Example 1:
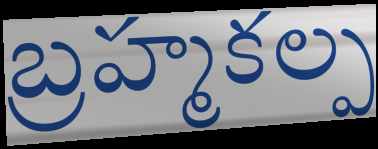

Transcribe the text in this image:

బ్రహ్మకల్ప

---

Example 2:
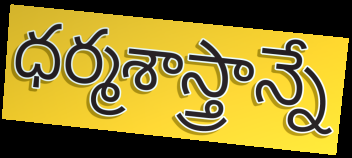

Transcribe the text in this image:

ధర్మశాస్త్రాన్నే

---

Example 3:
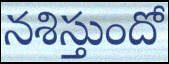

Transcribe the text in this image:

నశిస్తుందో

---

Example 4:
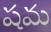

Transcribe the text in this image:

షమ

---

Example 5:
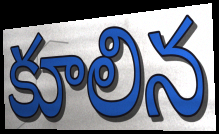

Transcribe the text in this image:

కూలిన